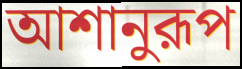
আশানুরূপ